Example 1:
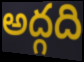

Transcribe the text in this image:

అద్గది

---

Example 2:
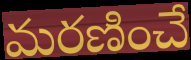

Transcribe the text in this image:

మరణించే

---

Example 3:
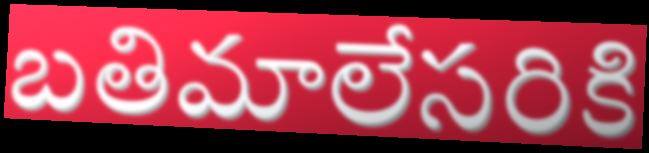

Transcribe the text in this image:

బతిమాలేసరికి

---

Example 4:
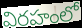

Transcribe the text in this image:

విరహంలో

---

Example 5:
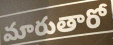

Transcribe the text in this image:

మారుతారో